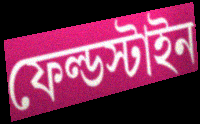
ফেল্ডস্টাইন